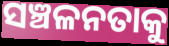
ସଞ୍ଚଳନତାକୁ